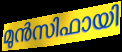
മുൻസിഫായി